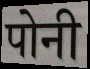
पोनी